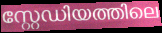
സ്റ്റേഡിയത്തിലെ